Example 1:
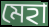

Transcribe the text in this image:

মেহা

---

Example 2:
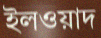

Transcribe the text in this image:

ইলওয়াদ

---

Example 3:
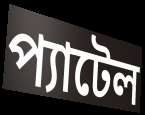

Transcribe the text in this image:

প্যাটেল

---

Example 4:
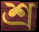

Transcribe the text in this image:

শ্র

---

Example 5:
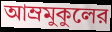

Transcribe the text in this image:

আম্রমুকুলের